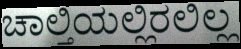
ಚಾಲ್ತಿಯಲ್ಲಿರಲಿಲ್ಲ